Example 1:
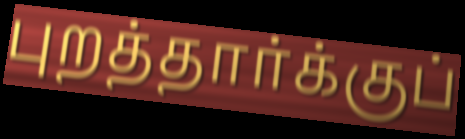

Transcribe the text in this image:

புறத்தார்க்குப்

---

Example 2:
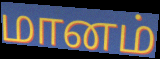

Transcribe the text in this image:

மானம்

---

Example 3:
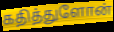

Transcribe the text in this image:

கதித்துளோன்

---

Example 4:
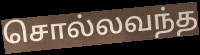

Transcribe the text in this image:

சொல்லவந்த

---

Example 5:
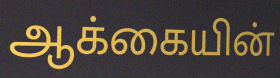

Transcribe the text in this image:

ஆக்கையின்